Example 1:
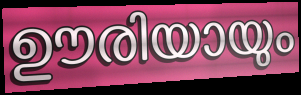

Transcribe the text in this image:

ഊരിയായും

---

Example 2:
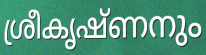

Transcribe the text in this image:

ശ്രീകൃഷ്ണനും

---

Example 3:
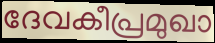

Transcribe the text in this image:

ദേവകീപ്രമുഖാ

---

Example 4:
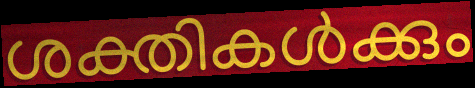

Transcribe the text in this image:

ശക്തികൾക്കും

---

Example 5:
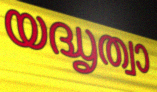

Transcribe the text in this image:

യദ്ധൃത്വാ